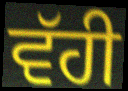
ਵੱਹੀ